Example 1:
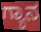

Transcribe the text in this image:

ಗ್ಯಾನ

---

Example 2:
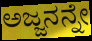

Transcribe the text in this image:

ಅಜ್ಜನನ್ನೇ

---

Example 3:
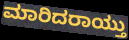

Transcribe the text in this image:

ಮಾರಿದರಾಯ್ತು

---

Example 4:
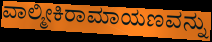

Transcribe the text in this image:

ವಾಲ್ಮೀಕಿರಾಮಾಯಣವನ್ನು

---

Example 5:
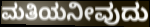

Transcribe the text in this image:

ಮತಿಯನೀವುದು